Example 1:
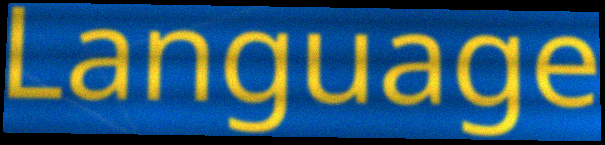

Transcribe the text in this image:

Language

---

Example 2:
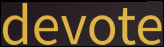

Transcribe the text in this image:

devote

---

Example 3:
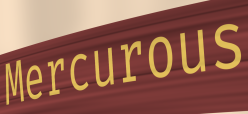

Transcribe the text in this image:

Mercurous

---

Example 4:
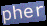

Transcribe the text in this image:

pher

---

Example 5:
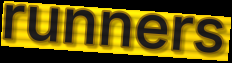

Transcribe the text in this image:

runners